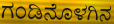
ಗಂಡಿನೊಳಗಿನ